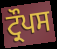
ਟ੍ਰੌਪਸ